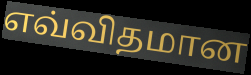
எவ்விதமான